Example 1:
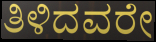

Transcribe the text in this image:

ತಿಳಿದವರೇ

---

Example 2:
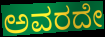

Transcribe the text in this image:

ಅವರದೇ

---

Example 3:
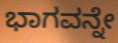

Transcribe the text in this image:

ಭಾಗವನ್ನೇ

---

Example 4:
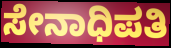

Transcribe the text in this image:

ಸೇನಾಧಿಪತಿ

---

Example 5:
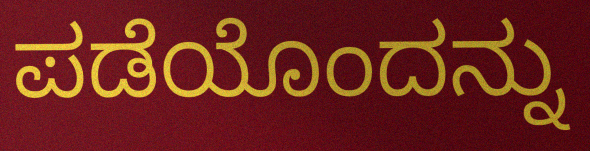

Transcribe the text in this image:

ಪಡೆಯೊಂದನ್ನು